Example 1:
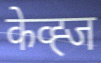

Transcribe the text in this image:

केव्ह्ज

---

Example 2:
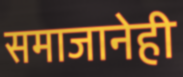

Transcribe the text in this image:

समाजानेही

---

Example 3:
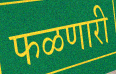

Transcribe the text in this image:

फळणारी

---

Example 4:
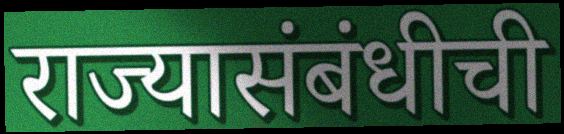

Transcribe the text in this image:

राज्यासंबंधीची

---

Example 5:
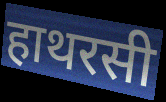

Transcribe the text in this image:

हाथरसी